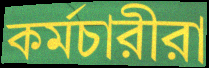
কর্মচারীরা